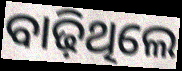
ବାଢ଼ିଥିଲେ